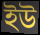
ইউ